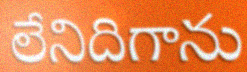
లేనిదిగాను